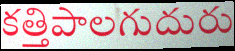
కత్తిపాలగుదురు